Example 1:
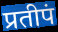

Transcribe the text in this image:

प्रतीपं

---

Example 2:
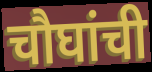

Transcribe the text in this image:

चौघांची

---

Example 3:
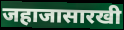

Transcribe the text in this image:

जहाजासारखी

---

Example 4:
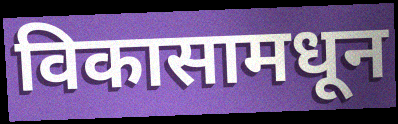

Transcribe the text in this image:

विकासामधून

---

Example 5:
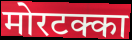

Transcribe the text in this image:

मोरटक्का